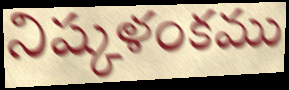
నిష్కళంకము